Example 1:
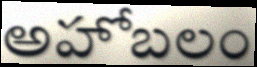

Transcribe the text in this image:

అహోబలం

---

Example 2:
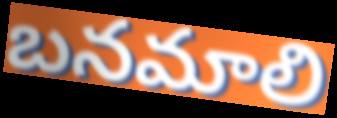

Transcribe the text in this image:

బనమాలి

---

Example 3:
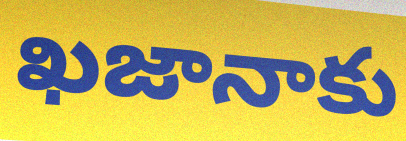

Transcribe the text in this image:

ఖజానాకు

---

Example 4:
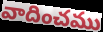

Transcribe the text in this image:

వాదించము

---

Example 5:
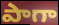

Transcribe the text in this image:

పాగా